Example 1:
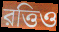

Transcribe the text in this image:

রত্তিও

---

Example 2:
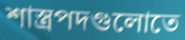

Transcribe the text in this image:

শাস্ত্রপদগুলোতে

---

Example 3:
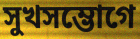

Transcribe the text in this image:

সুখসম্ভোগে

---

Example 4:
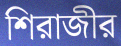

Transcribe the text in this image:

শিরাজীর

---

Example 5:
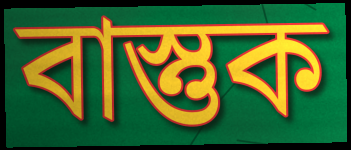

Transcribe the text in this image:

বাস্তুক